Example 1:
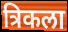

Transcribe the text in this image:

त्रिकला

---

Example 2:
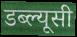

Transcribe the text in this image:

डब्ल्यूसी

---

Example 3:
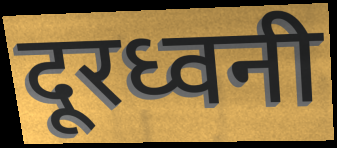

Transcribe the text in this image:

दूरध्वनी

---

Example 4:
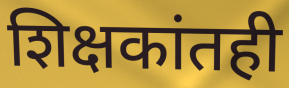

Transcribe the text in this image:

शिक्षकांतही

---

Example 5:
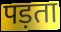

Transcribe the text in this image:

पड़ता